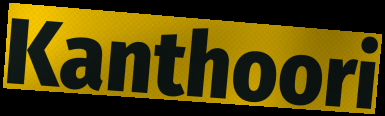
Kanthoori